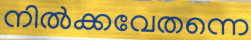
നിൽക്കവേതന്നെ